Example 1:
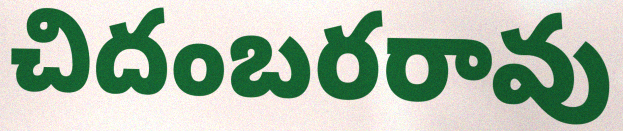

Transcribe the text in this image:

చిదంబరరావు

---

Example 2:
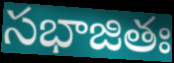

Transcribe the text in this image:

సభాజితః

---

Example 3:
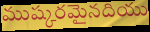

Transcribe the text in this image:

ముష్కరమైనదియు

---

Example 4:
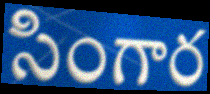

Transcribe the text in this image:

సింగార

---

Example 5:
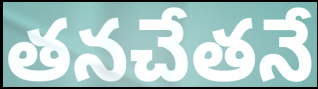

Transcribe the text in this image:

తనచేతనే